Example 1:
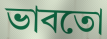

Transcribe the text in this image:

ভাবতো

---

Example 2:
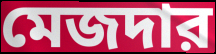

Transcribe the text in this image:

মেজদার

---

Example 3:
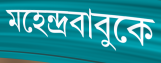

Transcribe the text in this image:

মহেন্দ্রবাবুকে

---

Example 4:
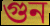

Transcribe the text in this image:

গুন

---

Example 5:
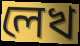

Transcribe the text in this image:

লেখ